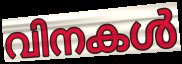
വിനകൾ